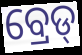
ବ୍ରେଡ୍